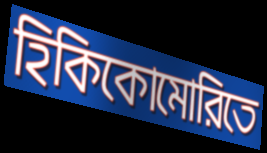
হিকিকোমোরিতে